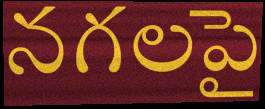
నగలపై